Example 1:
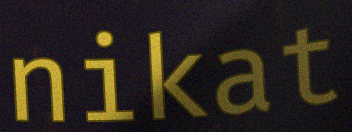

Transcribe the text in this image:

nikat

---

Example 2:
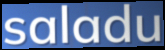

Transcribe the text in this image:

saladu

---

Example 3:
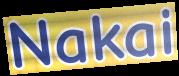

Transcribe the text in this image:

Nakai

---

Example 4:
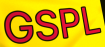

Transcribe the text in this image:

GSPL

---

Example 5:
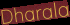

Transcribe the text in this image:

Dharala